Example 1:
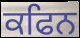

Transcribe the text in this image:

ਕਫਿਨ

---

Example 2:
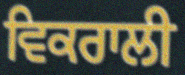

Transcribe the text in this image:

ਵਿਕਰਾਲੀ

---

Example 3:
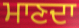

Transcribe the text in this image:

ਮਾਣਦਾ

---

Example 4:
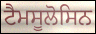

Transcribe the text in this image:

ਟੈਮਸੂਲੋਸਿਨ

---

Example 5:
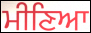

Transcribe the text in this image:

ਮੀਣਿਆ